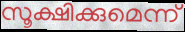
സൂക്ഷിക്കുമെന്ന്